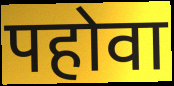
पहोवा